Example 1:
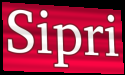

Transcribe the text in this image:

Sipri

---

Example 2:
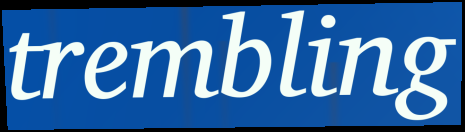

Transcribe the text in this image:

trembling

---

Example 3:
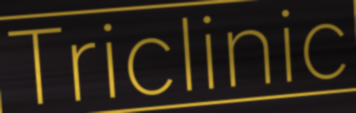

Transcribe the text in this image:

Triclinic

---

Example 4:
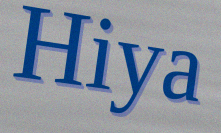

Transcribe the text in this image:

Hiya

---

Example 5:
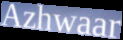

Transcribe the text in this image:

Azhwaar